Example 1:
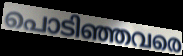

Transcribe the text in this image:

പൊടിഞ്ഞവരെ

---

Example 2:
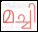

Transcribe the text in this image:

മച്ചി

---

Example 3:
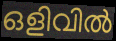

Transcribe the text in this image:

ഒളിവിൽ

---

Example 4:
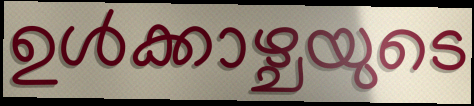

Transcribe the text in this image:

ഉൾക്കാഴ്ചയുടെ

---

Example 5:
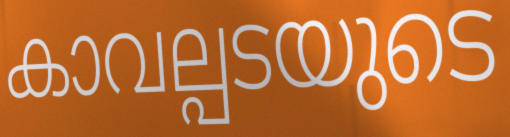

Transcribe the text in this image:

കാവല്പടയുടെ